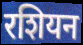
रशियन